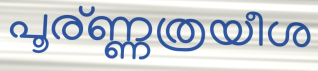
പൂര്ണ്ണത്രയീശ